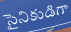
సైనికుడిగా